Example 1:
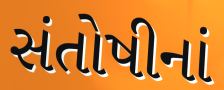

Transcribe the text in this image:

સંતોષીનાં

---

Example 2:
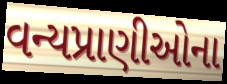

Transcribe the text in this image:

વન્યપ્રાણીઓના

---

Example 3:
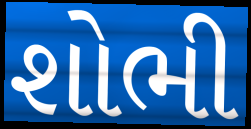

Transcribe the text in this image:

શોભી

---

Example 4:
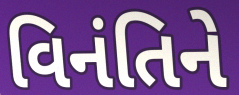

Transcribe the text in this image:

વિનંતિને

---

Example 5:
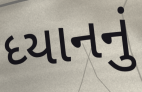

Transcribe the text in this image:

ધ્યાનનું